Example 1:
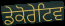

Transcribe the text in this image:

ਡੇਕੋਰੇਟਿਵ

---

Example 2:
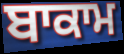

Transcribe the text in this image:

ਬਾਕਾਮ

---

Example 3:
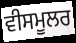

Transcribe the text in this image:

ਵੀਸਮੂਲਰ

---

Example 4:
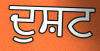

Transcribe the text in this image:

ਦੁਸ਼ਟ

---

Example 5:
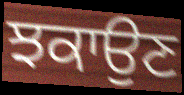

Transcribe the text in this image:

ਝਕਾਉਣ